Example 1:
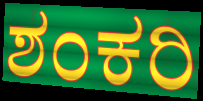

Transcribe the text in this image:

ಶಂಕರಿ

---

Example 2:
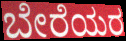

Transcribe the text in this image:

ಬೇರೆಯರ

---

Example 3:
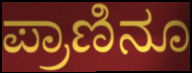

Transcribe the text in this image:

ಪ್ರಾಣಿನೂ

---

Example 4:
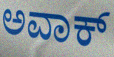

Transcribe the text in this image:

ಅವಾಕ್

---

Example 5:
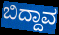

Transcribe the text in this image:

ಬಿದ್ದಾವ